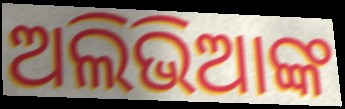
ଅଲିଭିଆଙ୍କ